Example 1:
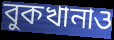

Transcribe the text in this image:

বুকখানাও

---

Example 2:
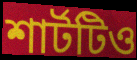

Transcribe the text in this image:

শার্টটিও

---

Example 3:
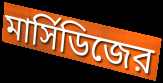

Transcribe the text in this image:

মার্সিডিজের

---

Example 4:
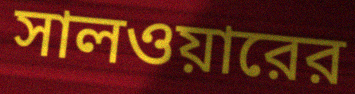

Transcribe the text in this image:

সালওয়ারের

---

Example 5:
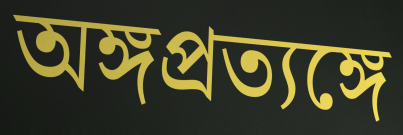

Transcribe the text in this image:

অঙ্গপ্রত্যঙ্গে